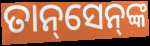
ତାନ୍‌ସେନ୍‌ଙ୍କ